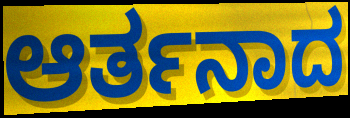
ಆರ್ತನಾದ